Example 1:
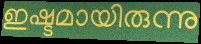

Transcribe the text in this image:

ഇഷ്ടമായിരുന്നു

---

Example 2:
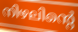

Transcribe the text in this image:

നിഴലിന്റെ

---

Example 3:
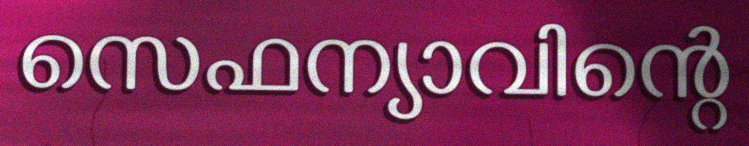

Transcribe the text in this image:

സെഫന്യാവിന്റെ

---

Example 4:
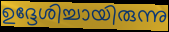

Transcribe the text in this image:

ഉദ്ദേശിച്ചായിരുന്നു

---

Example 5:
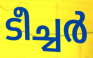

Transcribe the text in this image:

ടീച്ചർ